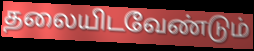
தலையிடவேண்டும்